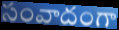
సంవాదంగా